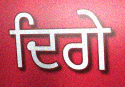
ਦਿਗੇ